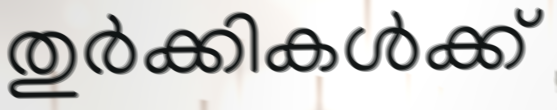
തുർക്കികൾക്ക്